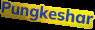
Pungkeshar